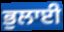
ਭੁਲਾਈ